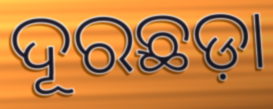
ଦୂରଛଡ଼ା